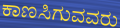
ಕಾಣಸಿಗುವವರು